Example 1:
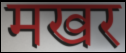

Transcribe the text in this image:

मखर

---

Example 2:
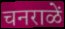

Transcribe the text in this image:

चनराळें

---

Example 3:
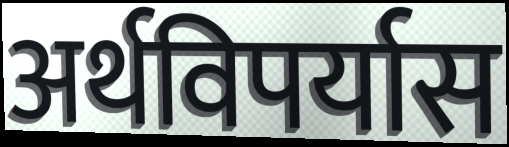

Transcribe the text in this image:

अर्थविपर्यास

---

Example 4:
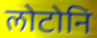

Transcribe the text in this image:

लोटोनि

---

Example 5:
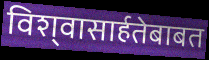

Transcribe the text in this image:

विश्वासार्हतेबाबत